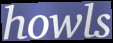
howls